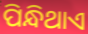
ପିନ୍ଧିଥାଏ